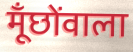
मूँछोंवाला